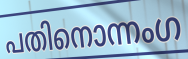
പതിനൊന്നംഗ